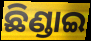
ଛିଣ୍ଡାଇ